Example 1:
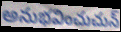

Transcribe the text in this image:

అనుభవించుచున్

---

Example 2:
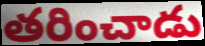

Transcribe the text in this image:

తరించాడు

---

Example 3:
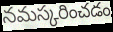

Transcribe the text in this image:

నమస్కరించడం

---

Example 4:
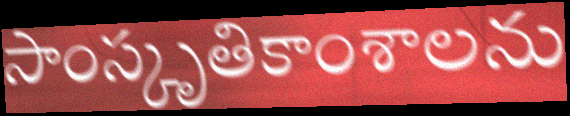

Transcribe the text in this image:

సాంస్కృతికాంశాలను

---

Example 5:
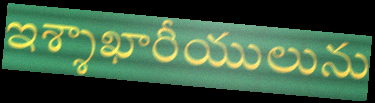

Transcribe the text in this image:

ఇశ్శాఖారీయులును